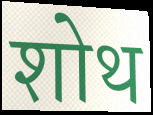
शोथ